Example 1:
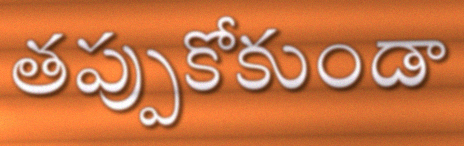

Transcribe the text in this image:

తప్పుకోకుండా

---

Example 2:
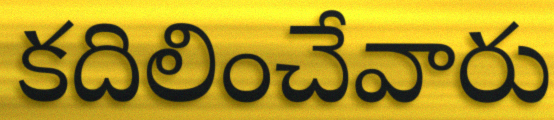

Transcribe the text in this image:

కదిలించేవారు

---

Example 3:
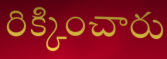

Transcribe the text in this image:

రిక్కించారు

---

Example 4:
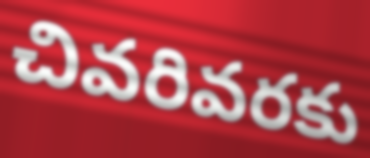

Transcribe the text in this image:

చివరివరకు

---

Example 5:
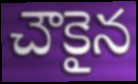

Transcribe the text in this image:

చౌకైన